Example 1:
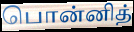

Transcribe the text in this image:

பொன்னித்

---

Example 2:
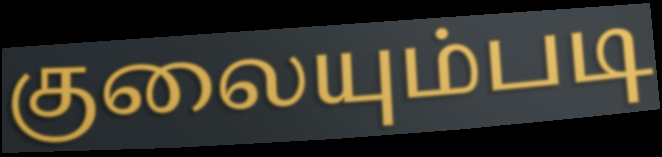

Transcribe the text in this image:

குலையும்படி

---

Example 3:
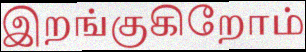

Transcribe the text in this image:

இறங்குகிறோம்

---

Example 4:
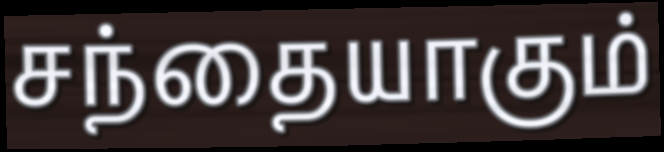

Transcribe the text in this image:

சந்தையாகும்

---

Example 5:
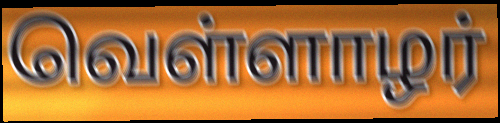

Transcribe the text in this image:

வெள்ளாழர்